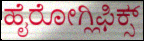
ಹೈರೋಗ್ಲಿಫಿಕ್ಸ್